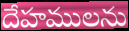
దేహములను